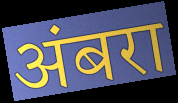
अंबरा